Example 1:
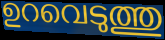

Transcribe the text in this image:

ഉറവെടുത്തു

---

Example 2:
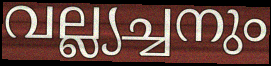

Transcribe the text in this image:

വല്ല്യച്ചനും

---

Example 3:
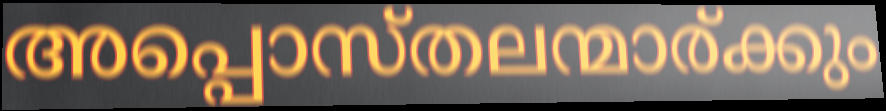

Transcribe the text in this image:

അപ്പൊസ്തലന്മാര്ക്കും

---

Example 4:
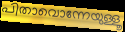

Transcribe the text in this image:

പിതാവൊന്നേയുള്ളൂ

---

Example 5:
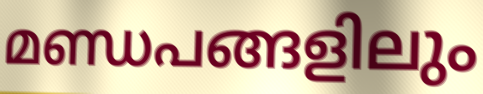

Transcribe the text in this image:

മണ്ഡപങ്ങളിലും